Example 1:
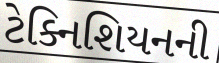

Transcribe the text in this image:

ટેક્નિશિયનની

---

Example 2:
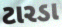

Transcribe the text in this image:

ટારડા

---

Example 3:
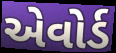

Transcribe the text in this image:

એવોર્ડ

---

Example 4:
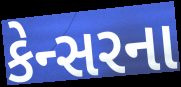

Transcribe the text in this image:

કેન્સરના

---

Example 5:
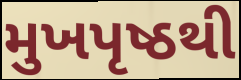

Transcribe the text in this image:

મુખપૃષ્ઠથી